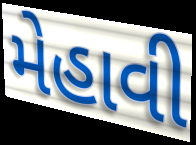
મેહાવી